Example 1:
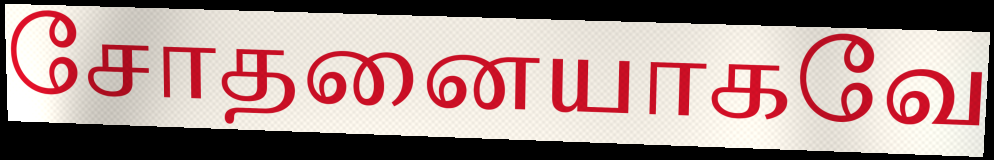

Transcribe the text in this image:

சோதனையாகவே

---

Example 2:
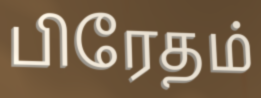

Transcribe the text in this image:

பிரேதம்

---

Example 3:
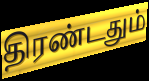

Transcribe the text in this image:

திரண்டதும்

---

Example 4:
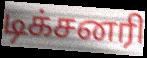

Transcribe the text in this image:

டிக்சனரி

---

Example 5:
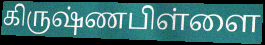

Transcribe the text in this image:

கிருஷ்ணபிள்ளை